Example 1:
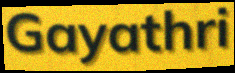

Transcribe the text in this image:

Gayathri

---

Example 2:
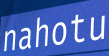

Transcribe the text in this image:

nahotu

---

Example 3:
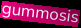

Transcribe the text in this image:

gummosis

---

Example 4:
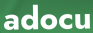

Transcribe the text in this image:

adocu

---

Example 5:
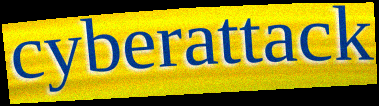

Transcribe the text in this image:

cyberattack